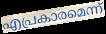
എപ്രകാരമെന്ന്